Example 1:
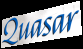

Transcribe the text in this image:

Quasar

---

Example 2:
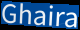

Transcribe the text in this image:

Ghaira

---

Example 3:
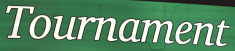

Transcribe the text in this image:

Tournament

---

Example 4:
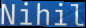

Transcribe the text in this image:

Nihil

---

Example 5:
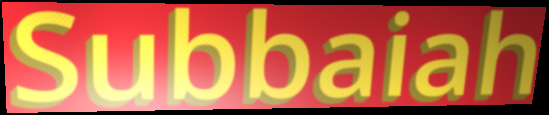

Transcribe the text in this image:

Subbaiah